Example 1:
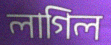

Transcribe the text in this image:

লাগিল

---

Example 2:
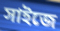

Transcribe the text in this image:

সাইজে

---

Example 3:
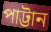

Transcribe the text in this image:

পাট্টান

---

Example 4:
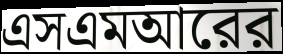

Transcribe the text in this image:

এসএমআরের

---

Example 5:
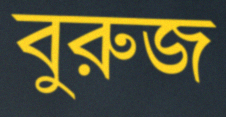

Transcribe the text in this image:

বুরুজ